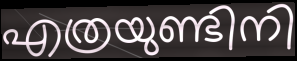
എത്രയുണ്ടിനി